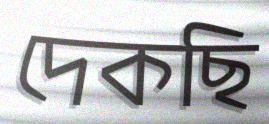
দেকছি